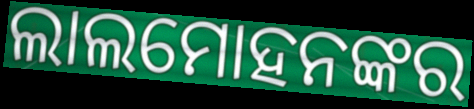
ଲାଲମୋହନଙ୍କର